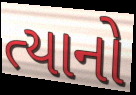
ત્યાનો